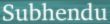
Subhendu